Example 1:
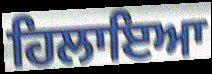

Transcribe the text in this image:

ਹਿਲਾਇਆ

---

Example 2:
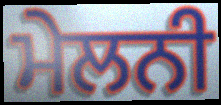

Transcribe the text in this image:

ਮੇਲਨੀ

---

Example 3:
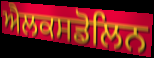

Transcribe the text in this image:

ਐਲਕਸਡੋਲਿਨ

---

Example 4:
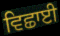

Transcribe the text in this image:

ਵਿਛਾਈ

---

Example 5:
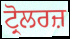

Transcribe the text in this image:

ਟ੍ਰੋਲਰਜ਼